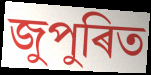
জুপুৰিত